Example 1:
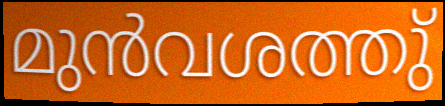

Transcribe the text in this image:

മുൻവശത്തു്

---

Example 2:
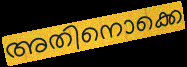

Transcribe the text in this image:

അതിനൊക്കെ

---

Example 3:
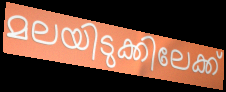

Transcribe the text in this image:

മലയിടുക്കിലേക്ക്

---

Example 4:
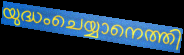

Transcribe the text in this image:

യുദ്ധംചെയ്യാനെത്തി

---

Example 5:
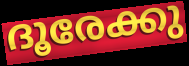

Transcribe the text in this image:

ദൂരേക്കു